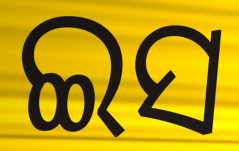
ଇସ